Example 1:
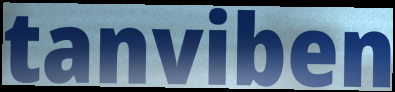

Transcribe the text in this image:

tanviben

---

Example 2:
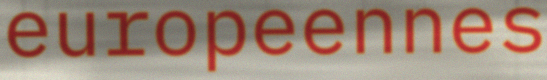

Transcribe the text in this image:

europeennes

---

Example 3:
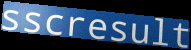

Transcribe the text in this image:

sscresult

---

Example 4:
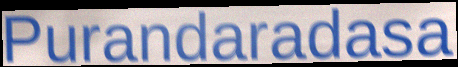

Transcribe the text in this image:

Purandaradasa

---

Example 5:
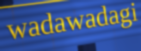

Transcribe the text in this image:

wadawadagi